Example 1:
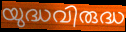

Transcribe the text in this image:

യുദ്ധവിരുദ്ധ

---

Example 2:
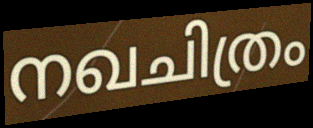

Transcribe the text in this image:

നഖചിത്രം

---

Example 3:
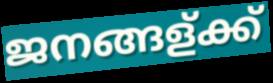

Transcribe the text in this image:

ജനങ്ങള്ക്ക്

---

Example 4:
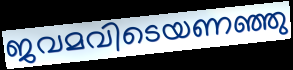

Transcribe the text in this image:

ജവമവിടെയണഞ്ഞു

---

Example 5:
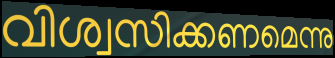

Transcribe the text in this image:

വിശ്വസിക്കണമെന്നു